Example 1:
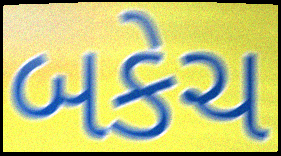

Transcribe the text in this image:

બકેચ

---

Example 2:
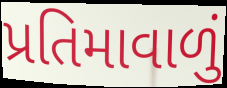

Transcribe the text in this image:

પ્રતિમાવાળું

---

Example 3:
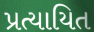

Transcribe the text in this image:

પ્રત્યાયિત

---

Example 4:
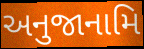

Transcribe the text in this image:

અનુજાનામિ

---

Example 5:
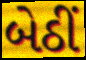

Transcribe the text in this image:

બેઠીં